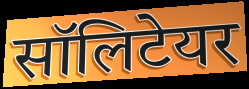
सॉलिटेयर